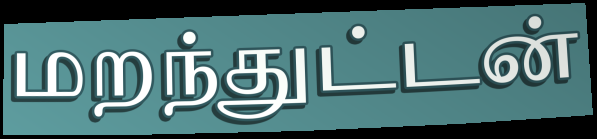
மறந்துட்டன்